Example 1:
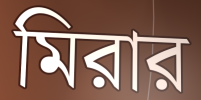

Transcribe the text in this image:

মিরার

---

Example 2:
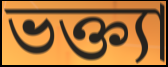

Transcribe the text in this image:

ভক্ত্যা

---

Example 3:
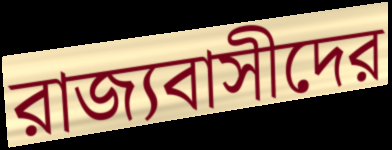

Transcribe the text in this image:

রাজ্যবাসীদের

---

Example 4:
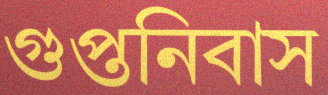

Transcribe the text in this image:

গুপ্তনিবাস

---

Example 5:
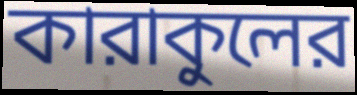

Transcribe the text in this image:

কারাকুলের